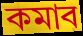
কমাব